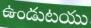
ఉండుటయు